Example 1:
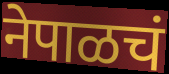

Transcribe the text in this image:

नेपाळचं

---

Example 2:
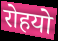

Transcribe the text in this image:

रोहयो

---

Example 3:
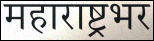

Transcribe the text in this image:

महाराष्ट्रभर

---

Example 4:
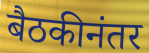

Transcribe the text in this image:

बैठकीनंतर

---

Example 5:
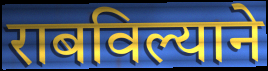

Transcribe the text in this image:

राबविल्याने